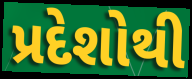
પ્રદેશોથી